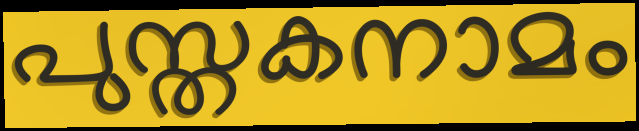
പുസ്തകനാമം